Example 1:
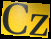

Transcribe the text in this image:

Cz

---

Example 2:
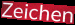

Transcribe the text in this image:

Zeichen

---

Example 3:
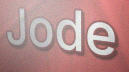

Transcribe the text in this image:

Jode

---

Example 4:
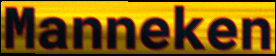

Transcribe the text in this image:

Manneken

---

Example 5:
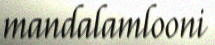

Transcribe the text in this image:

mandalamlooni